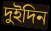
দুইদিন